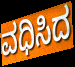
ವಧಿಸಿದ